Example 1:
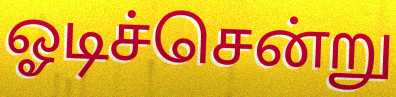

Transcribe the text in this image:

ஓடிச்சென்று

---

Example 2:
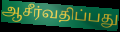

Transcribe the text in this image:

ஆசீர்வதிப்பது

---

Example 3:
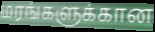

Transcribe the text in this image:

மரங்களுக்கான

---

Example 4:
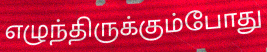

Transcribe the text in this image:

எழுந்திருக்கும்போது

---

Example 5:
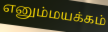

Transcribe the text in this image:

எனும்மயக்கம்